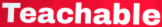
Teachable